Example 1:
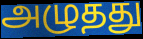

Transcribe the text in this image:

அழுதது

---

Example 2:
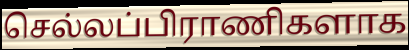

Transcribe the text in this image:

செல்லப்பிராணிகளாக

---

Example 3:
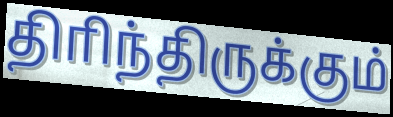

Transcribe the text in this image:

திரிந்திருக்கும்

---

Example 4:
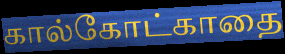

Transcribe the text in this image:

கால்கோட்காதை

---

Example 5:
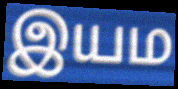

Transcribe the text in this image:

இயம